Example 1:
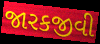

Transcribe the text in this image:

જારકજીવી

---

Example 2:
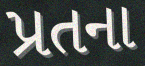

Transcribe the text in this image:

પ્રતના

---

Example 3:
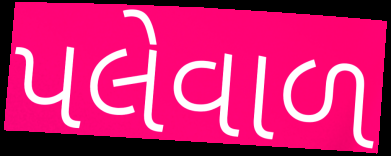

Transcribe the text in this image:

પલેવાળ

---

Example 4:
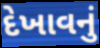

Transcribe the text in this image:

દેખાવનું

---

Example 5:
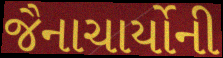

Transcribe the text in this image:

જૈનાચાર્યોની